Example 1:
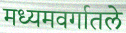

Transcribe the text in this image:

मध्यमवर्गातले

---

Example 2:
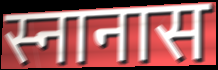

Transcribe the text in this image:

स्नानास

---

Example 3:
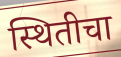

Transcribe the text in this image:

स्थितीचा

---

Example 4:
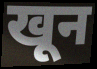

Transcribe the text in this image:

खून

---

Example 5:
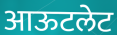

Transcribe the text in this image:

आऊटलेट